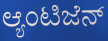
ಆ್ಯಂಟಿಜೆನ್